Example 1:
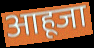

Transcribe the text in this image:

आहूजा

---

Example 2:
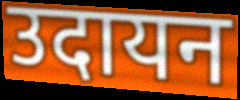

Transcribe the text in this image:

उदायन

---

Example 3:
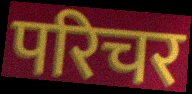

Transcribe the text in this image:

परिचर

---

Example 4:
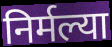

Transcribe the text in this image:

निर्मल्या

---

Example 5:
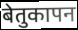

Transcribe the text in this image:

बेतुकापन